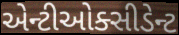
એન્ટીઓક્સીડેન્ટ